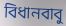
বিধানবাবু